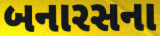
બનારસના